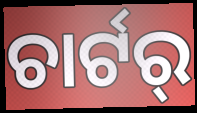
ଚାର୍ଟର୍